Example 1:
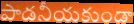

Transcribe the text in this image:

పాడనీయకుండా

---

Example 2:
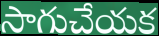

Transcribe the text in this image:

సాగుచేయక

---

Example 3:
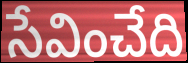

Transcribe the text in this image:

సేవించేది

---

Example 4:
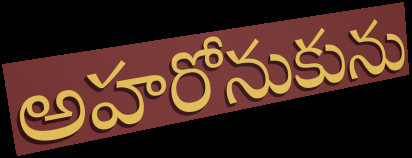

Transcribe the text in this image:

అహరోనుకును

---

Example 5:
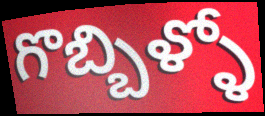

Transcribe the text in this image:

గొబ్బిళ్ళో